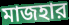
মাজহার